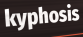
kyphosis